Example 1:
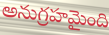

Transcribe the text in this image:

అనుగ్రహమైంది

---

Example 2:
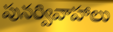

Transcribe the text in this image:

పునర్వివాహాలు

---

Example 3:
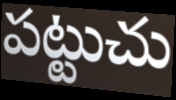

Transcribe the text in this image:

పట్టుచు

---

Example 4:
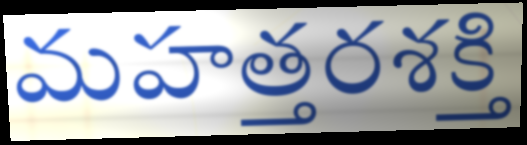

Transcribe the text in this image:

మహత్తరశక్తి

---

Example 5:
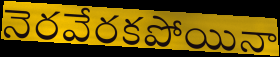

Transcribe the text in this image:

నెరవేరకపోయినా